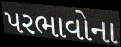
પરભાવોના